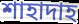
শাহাদাহ